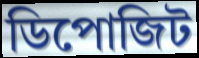
ডিপোজিট